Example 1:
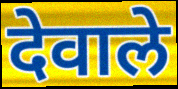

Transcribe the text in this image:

देवाले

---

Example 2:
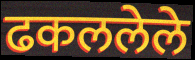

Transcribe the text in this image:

ढकललेले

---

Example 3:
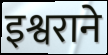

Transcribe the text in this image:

इश्वराने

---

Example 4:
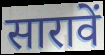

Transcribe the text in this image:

सारावें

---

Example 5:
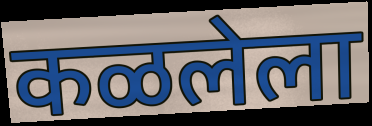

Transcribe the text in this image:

कळलेला